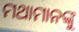
ମଥାମାନଙ୍କୁ